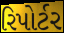
રિપોર્ટર